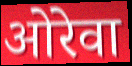
ओरेवा